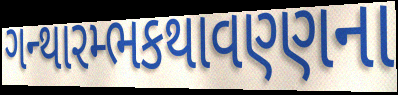
ગન્થારમ્ભકથાવણ્ણના